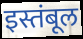
इस्तंबूल